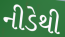
નીડેથી